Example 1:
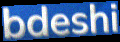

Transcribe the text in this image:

bdeshi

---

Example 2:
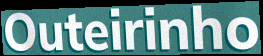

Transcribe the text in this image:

Outeirinho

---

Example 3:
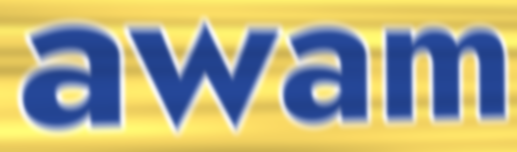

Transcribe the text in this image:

awam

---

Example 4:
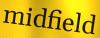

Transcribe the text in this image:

midfield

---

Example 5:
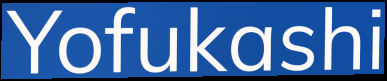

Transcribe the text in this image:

Yofukashi